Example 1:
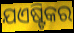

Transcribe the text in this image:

ଯଏଷ୍ଟିକର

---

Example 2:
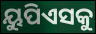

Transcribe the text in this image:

ୟୁପିଏସକୁ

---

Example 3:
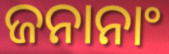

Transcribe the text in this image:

ଜନାନାଂ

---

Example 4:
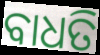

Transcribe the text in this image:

ବାଧତି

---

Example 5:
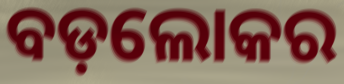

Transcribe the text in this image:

ବଡ଼ଲୋକର